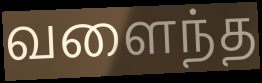
வளைந்த